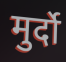
मुर्दो